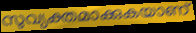
സുവ്യക്തമാക്കുകയാണ്